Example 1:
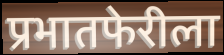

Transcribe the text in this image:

प्रभातफेरीला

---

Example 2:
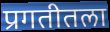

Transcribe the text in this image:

प्रगतीतला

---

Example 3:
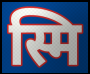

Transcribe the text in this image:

स्मि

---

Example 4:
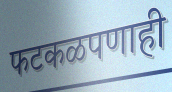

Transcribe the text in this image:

फटकळपणाही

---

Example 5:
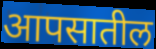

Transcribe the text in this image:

आपसातील